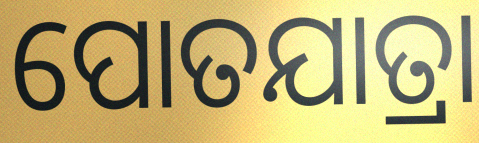
ପୋତଯାତ୍ରା